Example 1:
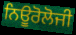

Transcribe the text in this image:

ਨਿਊਰੋਲੋਜੀ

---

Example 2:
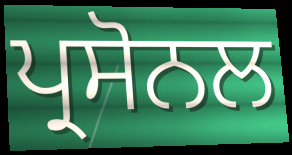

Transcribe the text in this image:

ਪ੍ਰਸੋਨਲ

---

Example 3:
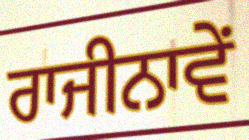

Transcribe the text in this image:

ਰਾਜੀਨਾਵੇਂ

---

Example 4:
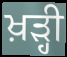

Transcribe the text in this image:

ਖ਼ੜ੍ਹੀ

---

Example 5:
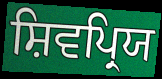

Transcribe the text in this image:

ਸ਼ਿਵਪ੍ਰਿਯ